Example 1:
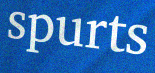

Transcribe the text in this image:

spurts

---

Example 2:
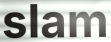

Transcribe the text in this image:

slam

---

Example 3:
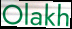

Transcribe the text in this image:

Olakh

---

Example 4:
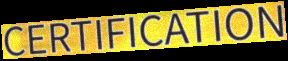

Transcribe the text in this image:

CERTIFICATION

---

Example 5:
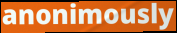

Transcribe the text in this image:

anonimously